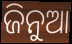
ଜିନୁଆ